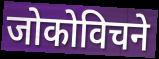
जोकोविचने